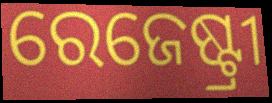
ରେଜେଷ୍ଟ୍ରୀ